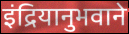
इंद्रियानुभवाने